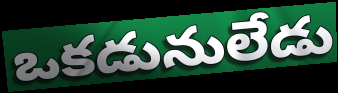
ఒకడునులేడు